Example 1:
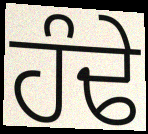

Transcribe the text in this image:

ਹੰਢੇ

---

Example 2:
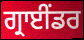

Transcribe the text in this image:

ਗ੍ਰਾਈਂਡਰ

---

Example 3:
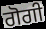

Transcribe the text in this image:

ਗੋਗੀ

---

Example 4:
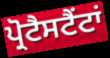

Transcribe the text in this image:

ਪ੍ਰੋਟੈਸਟੈਂਟਾਂ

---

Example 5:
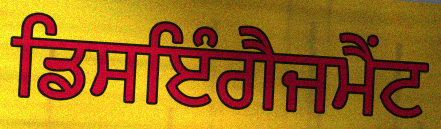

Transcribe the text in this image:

ਡਿਸਇੰਗੈਜਮੈਂਟ